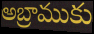
అబ్రాముకు